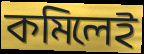
কমিলেই